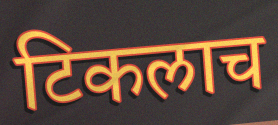
टिकलाच